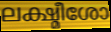
ലക്ഷ്മീശോ